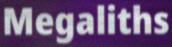
Megaliths